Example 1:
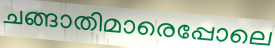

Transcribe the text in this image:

ചങ്ങാതിമാരെപ്പോലെ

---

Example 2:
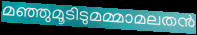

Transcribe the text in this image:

മഞ്ഞുമൂടിടുമമ്മാമലതൻ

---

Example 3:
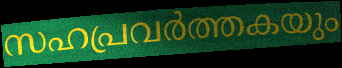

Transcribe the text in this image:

സഹപ്രവർത്തകയും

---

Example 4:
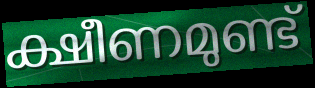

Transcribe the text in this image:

ക്ഷീണമുണ്ട്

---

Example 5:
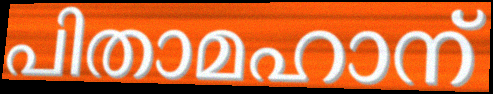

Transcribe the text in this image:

പിതാമഹാന്